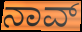
ನಾವ್